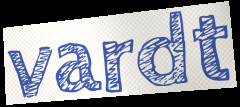
vardt